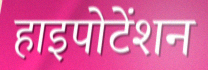
हाइपोटेंशन